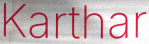
Karthar